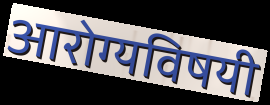
आरोग्यविषयी